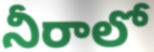
నీరాలో